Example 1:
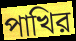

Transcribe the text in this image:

পাখির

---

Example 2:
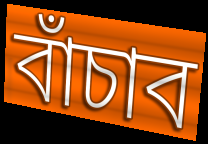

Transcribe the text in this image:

বাঁচাব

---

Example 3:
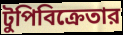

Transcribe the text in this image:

টুপিবিক্রেতার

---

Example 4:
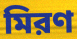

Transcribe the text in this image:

মিরণ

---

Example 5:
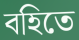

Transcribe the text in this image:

বহিতে